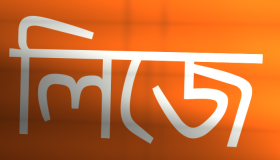
লিজে